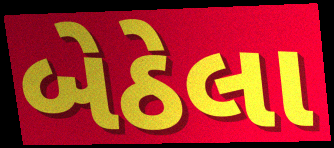
બેઠેલા